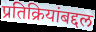
प्रतिक्रियांबद्दल